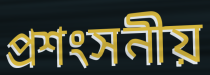
প্রশংসনীয়